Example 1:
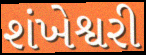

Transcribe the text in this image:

શંખેશ્વરી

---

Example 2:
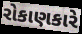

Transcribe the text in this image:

રોકાણકારે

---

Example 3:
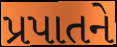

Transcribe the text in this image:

પ્રપાતને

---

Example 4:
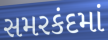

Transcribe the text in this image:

સમરકંદમાં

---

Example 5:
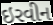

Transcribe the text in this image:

ઇરવીન